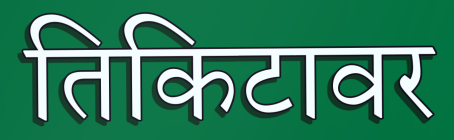
तिकिटावर